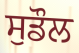
ਸੁਡੌਲ